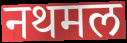
नथमल